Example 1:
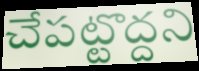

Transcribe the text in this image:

చేపట్టొద్దని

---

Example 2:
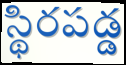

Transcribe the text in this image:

స్థిరపడ్డ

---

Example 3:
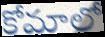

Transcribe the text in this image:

కోమాలో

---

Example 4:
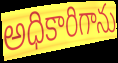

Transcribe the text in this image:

అధికారిగాను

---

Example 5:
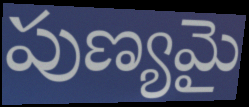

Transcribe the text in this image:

పుణ్యమై